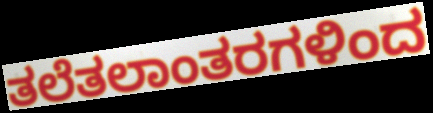
ತಲೆತಲಾಂತರಗಳಿಂದ